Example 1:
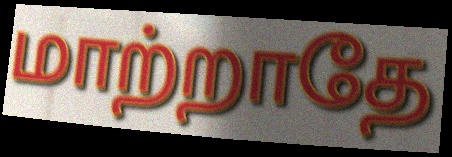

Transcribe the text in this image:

மாற்றாதே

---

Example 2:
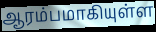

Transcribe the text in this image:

ஆரம்பமாகியுள்ள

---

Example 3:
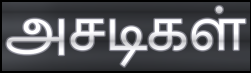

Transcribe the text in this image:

அசடிகள்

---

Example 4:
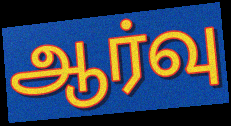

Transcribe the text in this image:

ஆர்வு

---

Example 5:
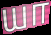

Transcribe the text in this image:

யா